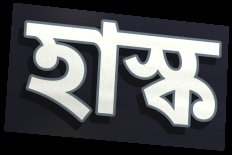
হাস্ক